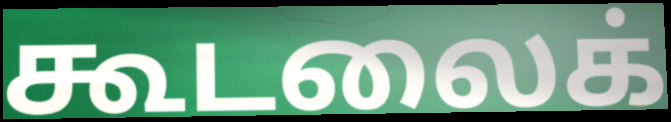
கூடலைக்